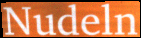
Nudeln